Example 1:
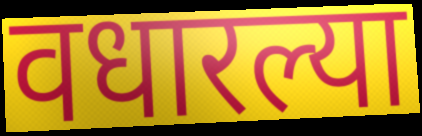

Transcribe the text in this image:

वधारल्या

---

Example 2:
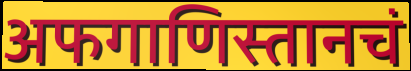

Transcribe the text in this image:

अफगाणिस्तानचं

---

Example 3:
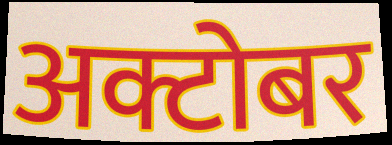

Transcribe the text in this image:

अक्टोबर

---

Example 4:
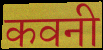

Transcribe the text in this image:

कवनी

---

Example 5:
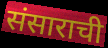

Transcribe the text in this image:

संसाराची